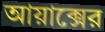
আয়াক্সের